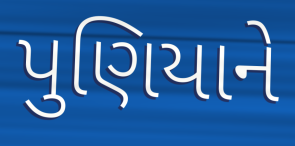
પુણિયાને